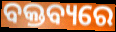
ବକ୍ତବ୍ୟରେ